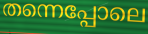
തന്നെപ്പോലെ